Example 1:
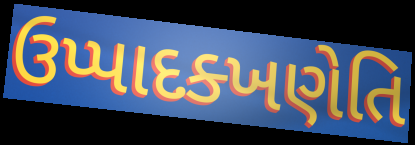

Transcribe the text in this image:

ઉપ્પાદક્ખણેતિ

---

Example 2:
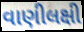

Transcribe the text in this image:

વાણીલક્ષી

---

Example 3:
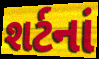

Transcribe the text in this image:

શર્ટનાં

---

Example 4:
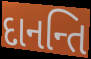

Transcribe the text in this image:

દાનન્તિ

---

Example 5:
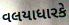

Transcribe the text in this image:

વલયાધારકે